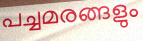
പച്ചമരങ്ങളും